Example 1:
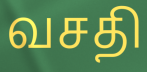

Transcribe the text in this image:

வசதி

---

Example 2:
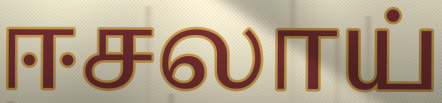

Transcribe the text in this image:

ஈசலாய்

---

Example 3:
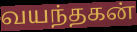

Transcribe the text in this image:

வயந்தகன்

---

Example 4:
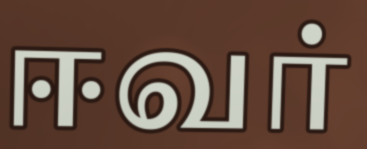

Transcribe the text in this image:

ஈவர்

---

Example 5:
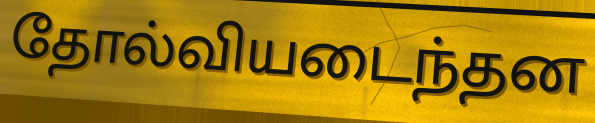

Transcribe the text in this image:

தோல்வியடைந்தன